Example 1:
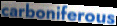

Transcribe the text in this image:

carboniferous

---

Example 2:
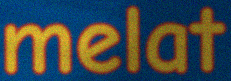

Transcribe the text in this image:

melat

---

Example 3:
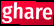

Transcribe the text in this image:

ghare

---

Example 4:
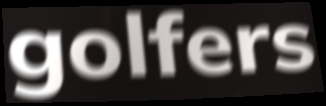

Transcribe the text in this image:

golfers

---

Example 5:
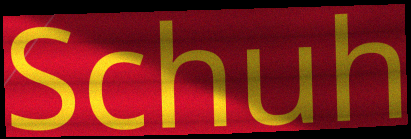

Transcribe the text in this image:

Schuh